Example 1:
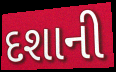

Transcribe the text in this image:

દશાની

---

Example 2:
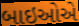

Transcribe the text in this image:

બાઇઓએ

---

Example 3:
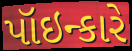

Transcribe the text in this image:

પૉઇન્કારે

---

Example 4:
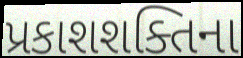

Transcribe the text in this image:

પ્રકાશશક્તિના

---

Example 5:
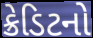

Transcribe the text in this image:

ક્રેડિટનો